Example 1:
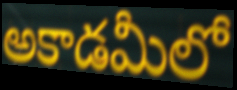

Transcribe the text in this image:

అకాడమీలో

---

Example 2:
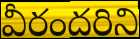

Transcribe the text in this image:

వీరందరిని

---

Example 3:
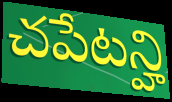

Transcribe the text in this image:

చపేటన్హి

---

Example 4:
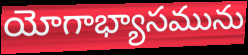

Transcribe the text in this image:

యోగాభ్యాసమును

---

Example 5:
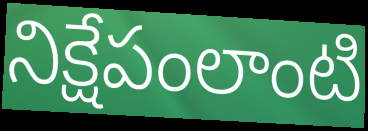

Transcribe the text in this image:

నిక్షేపంలాంటి